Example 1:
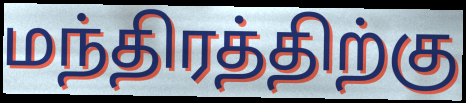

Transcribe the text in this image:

மந்திரத்திற்கு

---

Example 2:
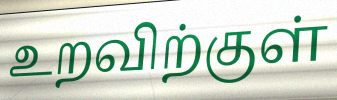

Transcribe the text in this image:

உறவிற்குள்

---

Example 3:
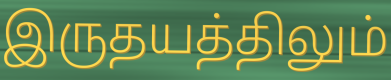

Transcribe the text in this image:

இருதயத்திலும்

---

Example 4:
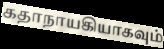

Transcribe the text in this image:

கதாநாயகியாகவும்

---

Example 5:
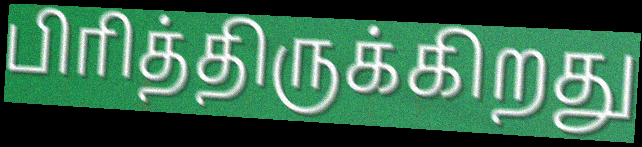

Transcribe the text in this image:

பிரித்திருக்கிறது